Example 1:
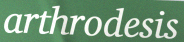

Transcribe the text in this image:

arthrodesis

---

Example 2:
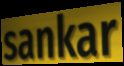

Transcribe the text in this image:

sankar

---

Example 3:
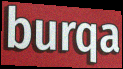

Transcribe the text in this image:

burqa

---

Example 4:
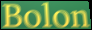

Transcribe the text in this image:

Bolon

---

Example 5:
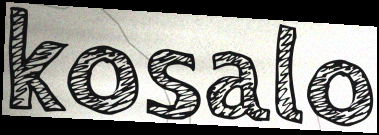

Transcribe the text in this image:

kosalo